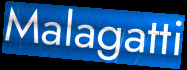
Malagatti